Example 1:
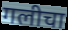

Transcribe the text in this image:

गलीचा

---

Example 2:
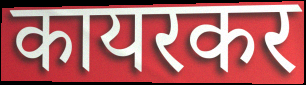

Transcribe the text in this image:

कायरकर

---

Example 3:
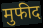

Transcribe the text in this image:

मुफीद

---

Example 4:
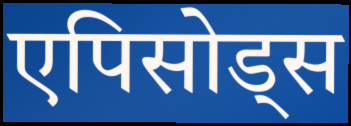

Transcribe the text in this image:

एपिसोड्स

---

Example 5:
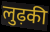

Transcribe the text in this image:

लुढ़की